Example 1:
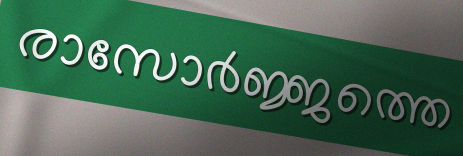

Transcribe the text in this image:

രാസോർജ്ജത്തെ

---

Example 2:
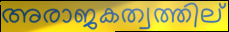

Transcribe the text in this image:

അരാജകത്വത്തില്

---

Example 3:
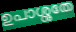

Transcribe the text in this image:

ഉപാശ്നുതേ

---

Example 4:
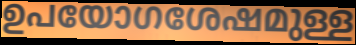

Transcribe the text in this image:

ഉപയോഗശേഷമുള്ള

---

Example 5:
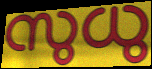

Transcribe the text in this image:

സുധു